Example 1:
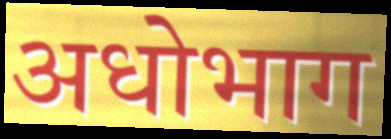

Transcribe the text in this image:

अधोभाग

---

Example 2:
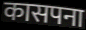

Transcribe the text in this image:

कासपना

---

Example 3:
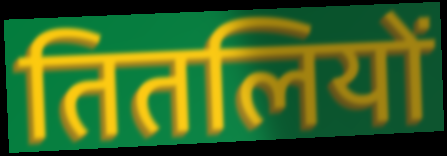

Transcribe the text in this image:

तितलियों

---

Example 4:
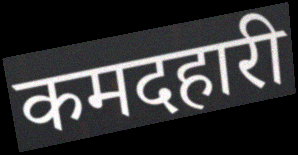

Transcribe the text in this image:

कमदहारी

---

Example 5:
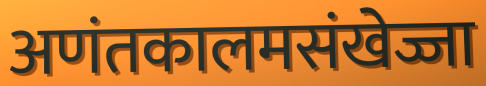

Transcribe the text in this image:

अणंतकालमसंखेज्जा